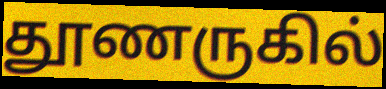
தூணருகில்